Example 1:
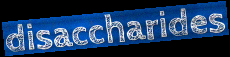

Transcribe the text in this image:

disaccharides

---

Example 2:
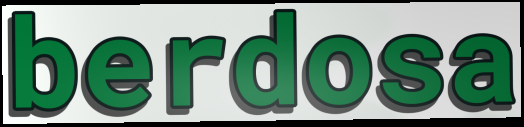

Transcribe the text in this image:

berdosa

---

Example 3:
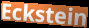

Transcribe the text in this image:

Eckstein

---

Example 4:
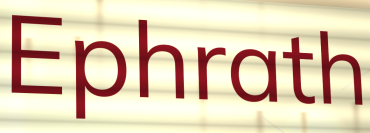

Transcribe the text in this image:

Ephrath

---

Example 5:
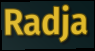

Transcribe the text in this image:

Radja